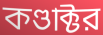
কণ্ডাক্টর